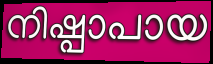
നിഷ്പാപായ